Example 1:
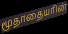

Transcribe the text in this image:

மூதாதையரின்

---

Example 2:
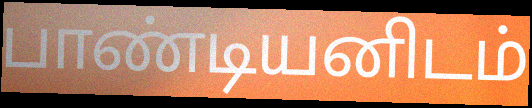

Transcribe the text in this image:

பாண்டியனிடம்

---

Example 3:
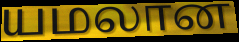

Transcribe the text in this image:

யமலான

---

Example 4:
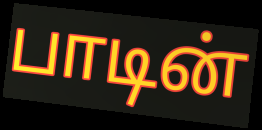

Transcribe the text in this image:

பாடின்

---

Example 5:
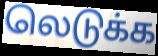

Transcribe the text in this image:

லெடுக்க